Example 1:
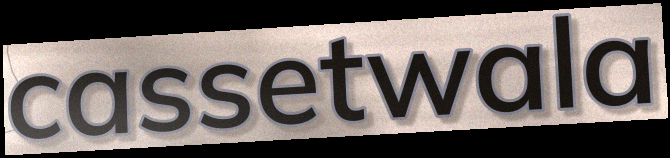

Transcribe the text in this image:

cassetwala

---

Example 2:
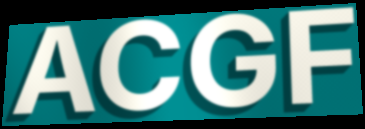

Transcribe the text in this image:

ACGF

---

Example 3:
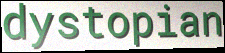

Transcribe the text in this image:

dystopian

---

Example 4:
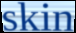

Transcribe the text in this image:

skin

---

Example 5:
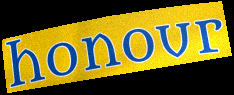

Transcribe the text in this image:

honour